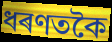
ধৰণতকৈ